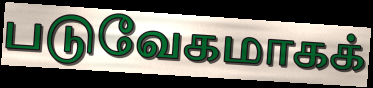
படுவேகமாகக்